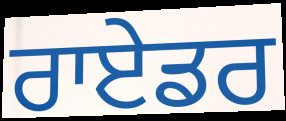
ਰਾਏਡਰ